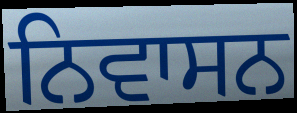
ਨਿਵਾਸਨ